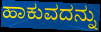
ಹಾಕುವದನ್ನು